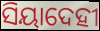
ସିୟାଦେହୀ